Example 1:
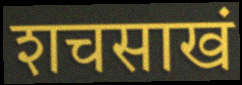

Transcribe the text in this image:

शचसाखं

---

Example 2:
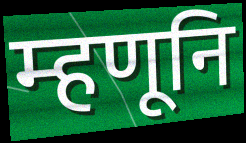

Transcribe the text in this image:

म्हणूनि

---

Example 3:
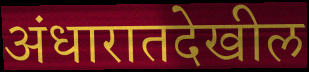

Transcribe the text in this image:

अंधारातदेखील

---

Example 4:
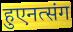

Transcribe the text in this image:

हुएनत्संग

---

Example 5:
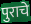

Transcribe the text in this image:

पुराचे